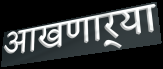
आखणार्या